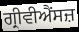
ਗ੍ਰੀਵੀਐਂਸਜ਼